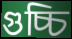
গুচ্চি